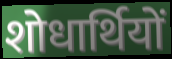
शोधार्थियों